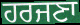
ਹਰਜਣਾ